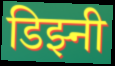
डिझ्नी